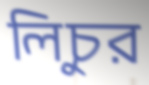
লিচুর